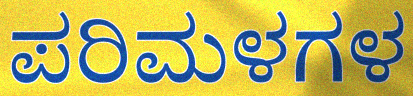
ಪರಿಮಳಗಳ